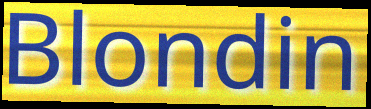
Blondin